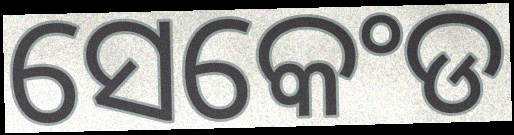
ସେକେଂଡ